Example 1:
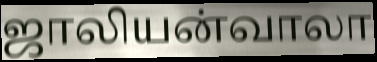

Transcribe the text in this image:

ஜாலியன்வாலா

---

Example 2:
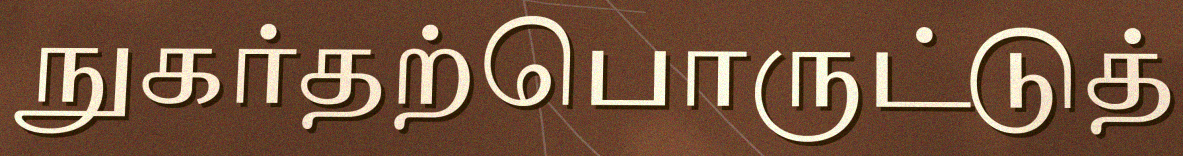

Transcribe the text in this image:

நுகர்தற்பொருட்டுத்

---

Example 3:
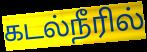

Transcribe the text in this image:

கடல்நீரில்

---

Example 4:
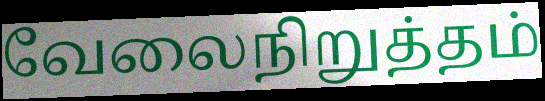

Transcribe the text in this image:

வேலைநிறுத்தம்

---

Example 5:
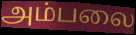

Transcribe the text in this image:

அம்பலை